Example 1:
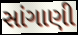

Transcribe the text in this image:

સાંગાણી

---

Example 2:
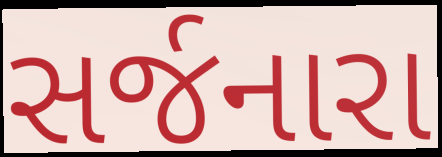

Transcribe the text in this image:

સર્જનારા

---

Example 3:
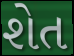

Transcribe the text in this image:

શેત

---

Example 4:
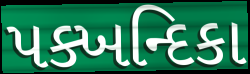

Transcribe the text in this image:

પક્ખન્દિકા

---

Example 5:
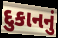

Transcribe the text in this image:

દુકાનનું